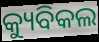
କ୍ୟୁବିକଲ